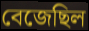
বেজেছিল